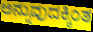
ಅನ್ನುವುದಕ್ಕಿಂತ